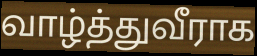
வாழ்த்துவீராக